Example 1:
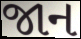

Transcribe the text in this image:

જાન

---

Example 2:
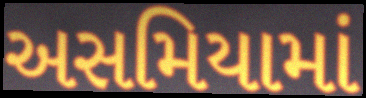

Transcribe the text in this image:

અસમિયામાં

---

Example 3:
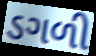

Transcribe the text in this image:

ડગળી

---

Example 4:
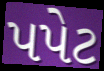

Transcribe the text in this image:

પપેટ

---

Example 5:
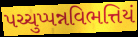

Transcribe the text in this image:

પચ્ચુપ્પન્નવિભત્તિયં